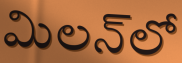
మిలన్‌లో